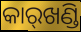
କାର୍‌ଖଣ୍ଡି